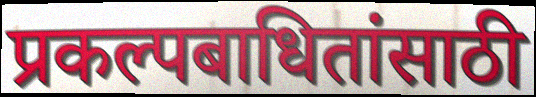
प्रकल्पबाधितांसाठी